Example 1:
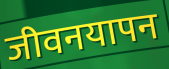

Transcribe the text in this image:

जीवनयापन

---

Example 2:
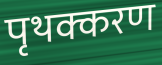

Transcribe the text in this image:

पृथक्करण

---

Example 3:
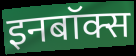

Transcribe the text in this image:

इनबॉक्स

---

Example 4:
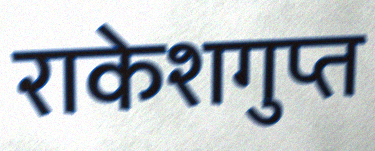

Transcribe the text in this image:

राकेशगुप्त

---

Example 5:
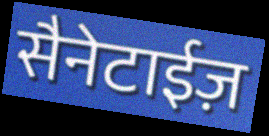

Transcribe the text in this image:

सैनेटाईज़